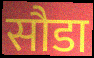
सौडा